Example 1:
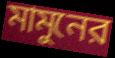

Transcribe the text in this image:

মামুনের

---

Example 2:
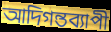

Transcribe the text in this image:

আদিগন্তব্যাপী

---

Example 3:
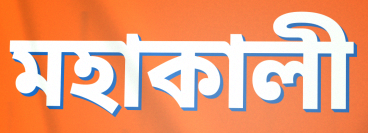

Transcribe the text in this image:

মহাকালী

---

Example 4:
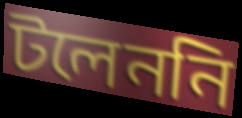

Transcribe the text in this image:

টলেননি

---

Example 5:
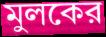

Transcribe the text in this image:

মুলকের